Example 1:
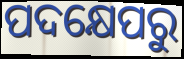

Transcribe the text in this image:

ପଦକ୍ଷେପରୁ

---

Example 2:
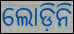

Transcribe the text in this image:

ଲୋଡ଼ିନି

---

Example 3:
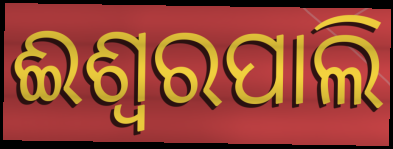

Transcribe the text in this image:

ଈଶ୍ୱରପାଲି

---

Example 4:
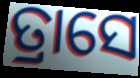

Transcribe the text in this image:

ତ୍ରାସେ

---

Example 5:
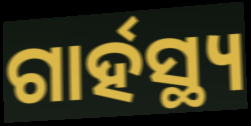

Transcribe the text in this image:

ଗାର୍ହସ୍ଥ୍ୟ